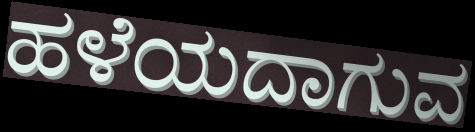
ಹಳೆಯದಾಗುವ